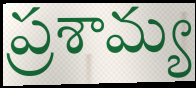
ప్రశామ్య